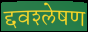
द्दवश्लेषण